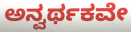
ಅನ್ವರ್ಥಕವೇ